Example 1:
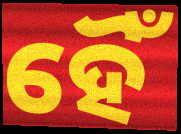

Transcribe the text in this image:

ହୈଁ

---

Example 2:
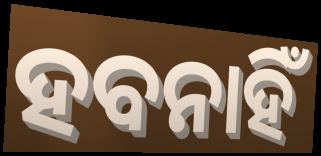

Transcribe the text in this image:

ହବନାହିଁ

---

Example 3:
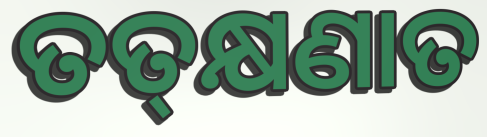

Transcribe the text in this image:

ତତ୍‌କ୍ଷଣାତ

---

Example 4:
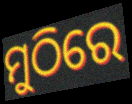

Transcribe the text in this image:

ମୁଠିରେ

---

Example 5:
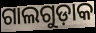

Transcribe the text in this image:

ଗାଲଗୁଡ଼ାକ